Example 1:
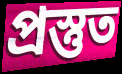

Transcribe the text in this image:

প্রস্তুত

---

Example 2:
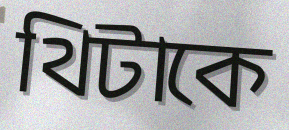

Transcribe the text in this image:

থিটাকে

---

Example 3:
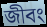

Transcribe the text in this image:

জীবং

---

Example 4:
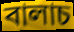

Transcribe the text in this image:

বালাচ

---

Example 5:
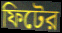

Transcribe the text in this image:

ফিটের